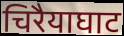
चिरैयाघाट